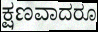
ಕ್ಷಣವಾದರೂ